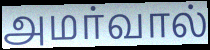
அமர்வால்